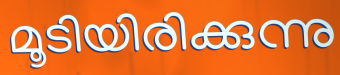
മൂടിയിരിക്കുന്നു